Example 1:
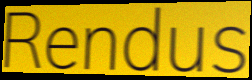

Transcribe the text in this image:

Rendus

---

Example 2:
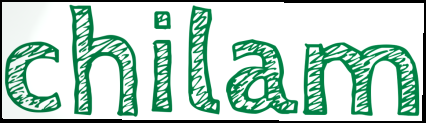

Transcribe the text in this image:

chilam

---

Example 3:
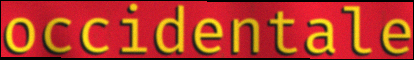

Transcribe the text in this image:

occidentale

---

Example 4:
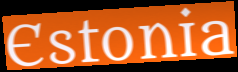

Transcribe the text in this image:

Estonia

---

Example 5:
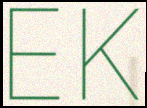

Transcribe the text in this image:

EK